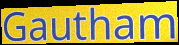
Gautham